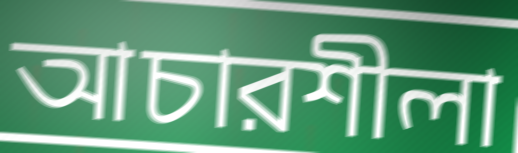
আচারশীলা